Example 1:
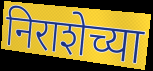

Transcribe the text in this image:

निराशेच्या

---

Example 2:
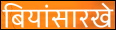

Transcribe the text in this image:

बियांसारखे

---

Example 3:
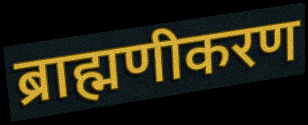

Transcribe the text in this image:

ब्राह्मणीकरण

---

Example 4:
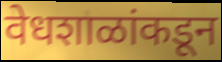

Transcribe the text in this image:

वेधशाळांकडून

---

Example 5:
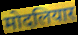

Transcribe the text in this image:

मोदलियार